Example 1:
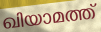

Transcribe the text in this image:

ഖിയാമത്ത്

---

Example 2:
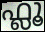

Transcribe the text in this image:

ഫ്ലൂ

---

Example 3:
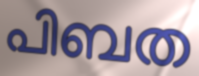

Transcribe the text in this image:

പിബത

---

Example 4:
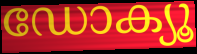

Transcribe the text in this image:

ഡോക്യൂ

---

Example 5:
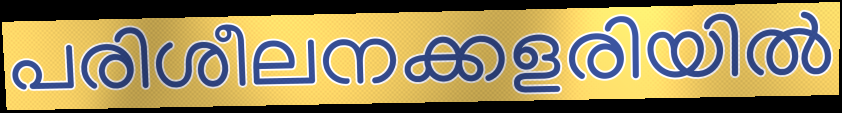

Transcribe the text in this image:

പരിശീലനക്കളരിയിൽ